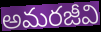
అమరజీవి